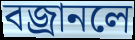
বজ্রানলে